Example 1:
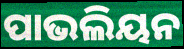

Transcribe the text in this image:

ପାଭଲିୟନ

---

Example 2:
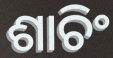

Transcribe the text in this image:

ଶାଚିଂ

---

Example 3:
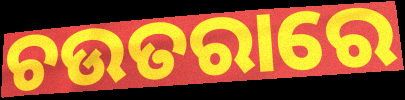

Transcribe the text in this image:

ଚଉତରାରେ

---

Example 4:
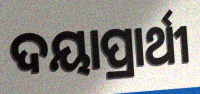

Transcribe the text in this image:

ଦୟାପ୍ରାର୍ଥୀ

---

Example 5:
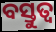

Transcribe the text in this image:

ବସ୍ତୁତ୍ବ